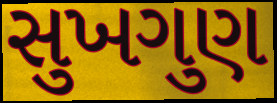
સુખગુણ